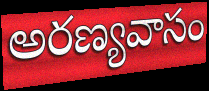
అరణ్యవాసం